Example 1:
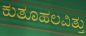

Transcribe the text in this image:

ಕುತೂಹಲವಿತ್ತು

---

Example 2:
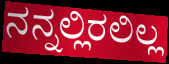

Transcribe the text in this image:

ನನ್ನಲ್ಲಿರಲಿಲ್ಲ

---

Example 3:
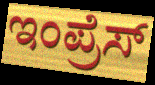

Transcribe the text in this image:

ಇಂಪ್ರೆಸ್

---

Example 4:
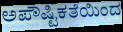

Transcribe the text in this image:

ಅಪೌಷ್ಟಿಕತೆಯಿಂದ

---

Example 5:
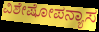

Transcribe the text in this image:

ವಿಶೇಷೋಪನ್ಯಾಸ